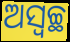
ଅସ୍ଵଚ୍ଛ